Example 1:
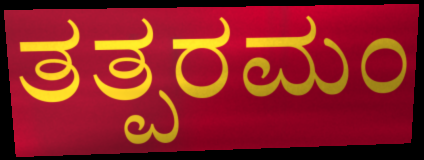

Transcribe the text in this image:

ತತ್ಪರಮಂ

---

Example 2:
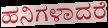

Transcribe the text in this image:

ಹನಿಗಳಾದರೆ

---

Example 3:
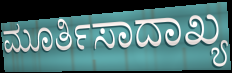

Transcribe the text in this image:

ಮೂರ್ತಿಸಾದಾಖ್ಯ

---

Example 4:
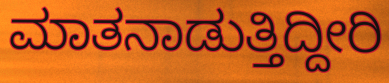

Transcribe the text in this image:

ಮಾತನಾಡುತ್ತಿದ್ದೀರಿ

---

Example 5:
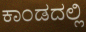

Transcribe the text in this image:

ಕಾಂಡದಲ್ಲಿ